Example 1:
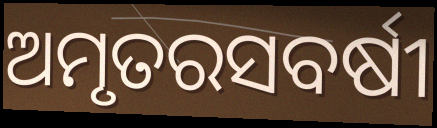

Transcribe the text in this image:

ଅମୃତରସବର୍ଷୀ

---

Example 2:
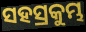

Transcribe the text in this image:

ସହସ୍ରକୁମ୍ଭ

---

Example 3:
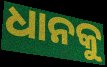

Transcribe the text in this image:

ଧାନକୁ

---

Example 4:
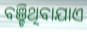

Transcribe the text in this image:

ବଞ୍ଚିଥିବାଯାଏ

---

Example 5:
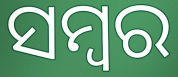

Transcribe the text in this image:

ସମ୍ବର